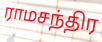
ராமசந்திர